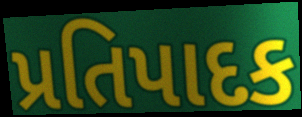
પ્રતિપાદક